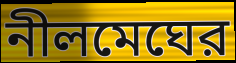
নীলমেঘের